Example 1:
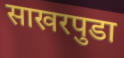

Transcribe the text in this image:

साखरपुडा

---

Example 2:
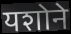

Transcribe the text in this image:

यशोने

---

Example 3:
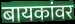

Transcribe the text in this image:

बायकांवर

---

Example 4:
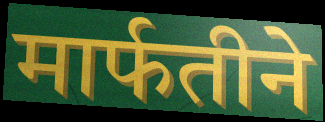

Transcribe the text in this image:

मार्फतीने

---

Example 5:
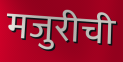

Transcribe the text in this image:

मजुरीची